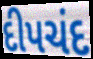
દીપચંદ